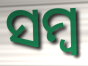
ସମ୍ବ